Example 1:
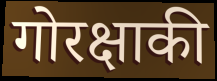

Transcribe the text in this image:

गोरक्षाकी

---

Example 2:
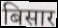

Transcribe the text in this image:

बिसार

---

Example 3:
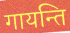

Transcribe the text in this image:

गायन्ति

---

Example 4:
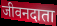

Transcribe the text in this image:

जीवनदाता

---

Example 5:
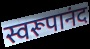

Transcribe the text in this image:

स्‍वरूपानंद